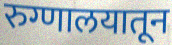
रुग्णालयातून